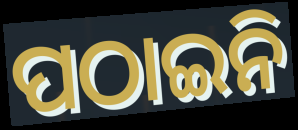
ପଠାଇନି